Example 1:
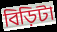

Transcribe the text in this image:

বিড়িটা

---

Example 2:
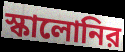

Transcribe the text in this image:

স্কালোনির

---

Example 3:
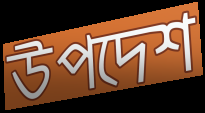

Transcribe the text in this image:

উপদেশ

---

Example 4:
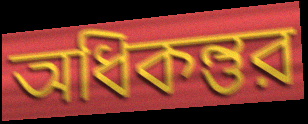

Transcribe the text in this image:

অধিকন্তুর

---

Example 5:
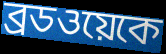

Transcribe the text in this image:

ব্রডওয়েকে